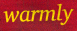
warmly